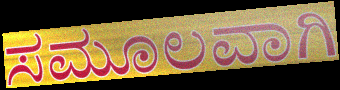
ಸಮೂಲವಾಗಿ